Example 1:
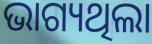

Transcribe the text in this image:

ଭାଗ୍ୟଥିଲା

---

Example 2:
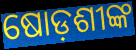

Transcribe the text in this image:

ଷୋଡ଼ଶୀଙ୍କ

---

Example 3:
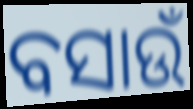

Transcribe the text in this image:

ବସାଉଁ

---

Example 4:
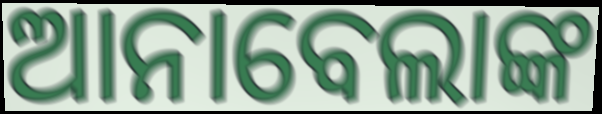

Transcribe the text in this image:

ଆନାବେଲାଙ୍କ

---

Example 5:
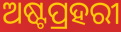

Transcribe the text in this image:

ଅଷ୍ଟପ୍ରହରୀ